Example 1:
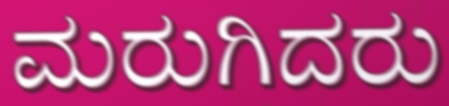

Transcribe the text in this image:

ಮರುಗಿದರು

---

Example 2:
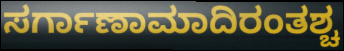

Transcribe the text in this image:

ಸರ್ಗಾಣಾಮಾದಿರಂತಶ್ಚ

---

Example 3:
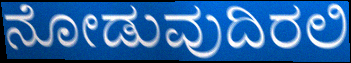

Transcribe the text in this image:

ನೋಡುವುದಿರಲಿ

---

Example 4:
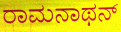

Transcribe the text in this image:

ರಾಮನಾಥನ್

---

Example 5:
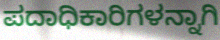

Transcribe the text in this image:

ಪದಾಧಿಕಾರಿಗಳನ್ನಾಗಿ